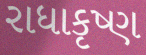
રાધાકૃષ્ણ